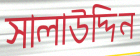
সালাউদ্দিন